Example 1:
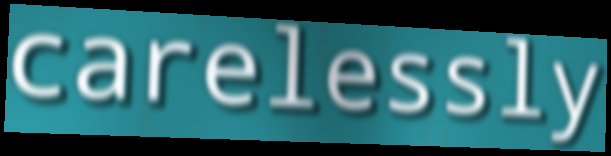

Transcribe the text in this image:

carelessly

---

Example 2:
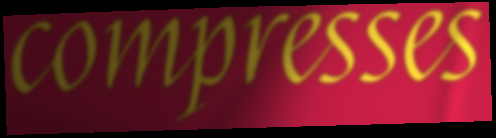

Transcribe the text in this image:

compresses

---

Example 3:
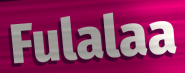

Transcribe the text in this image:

Fulalaa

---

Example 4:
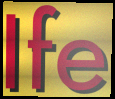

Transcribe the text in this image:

Ife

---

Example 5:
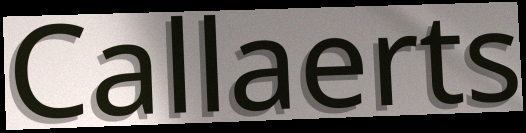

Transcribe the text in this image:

Callaerts